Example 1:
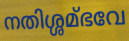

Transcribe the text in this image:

നതിശ്ശമ്ഭവേ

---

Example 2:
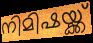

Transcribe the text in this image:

നിമിഷയ്ക്ക്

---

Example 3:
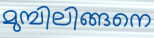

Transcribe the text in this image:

മുമ്പിലിങ്ങനെ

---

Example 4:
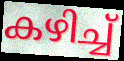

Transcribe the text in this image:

കഴിച്ച്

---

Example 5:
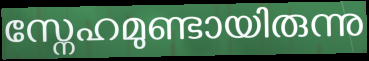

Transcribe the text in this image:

സ്നേഹമുണ്ടായിരുന്നു